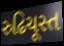
રુઢિચૂસ્ત